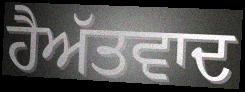
ਹੈਅੱਤਵਾਦ